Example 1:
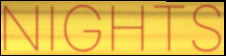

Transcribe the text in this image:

NIGHTS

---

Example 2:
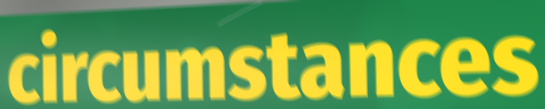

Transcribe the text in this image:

circumstances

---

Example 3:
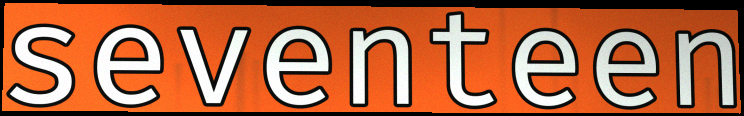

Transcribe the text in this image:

seventeen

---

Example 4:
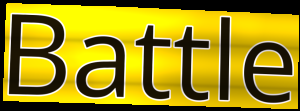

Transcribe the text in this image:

Battle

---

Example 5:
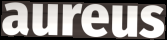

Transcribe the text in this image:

aureus